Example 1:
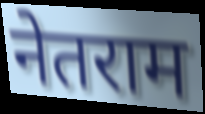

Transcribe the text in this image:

नेतराम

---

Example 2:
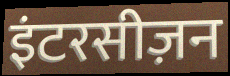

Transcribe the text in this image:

इंटरसीज़न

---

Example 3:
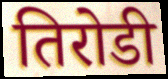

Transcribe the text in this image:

तिरोडी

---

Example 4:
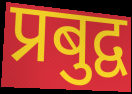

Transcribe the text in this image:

प्रबुद्व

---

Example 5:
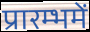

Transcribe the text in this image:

प्रारम्भमें